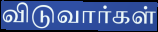
விடுவார்கள்